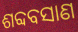
ଶବ୍ଦବସାଣ